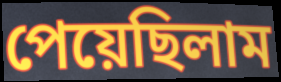
পেয়েছিলাম